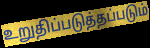
உறுதிப்படுத்தப்படும்